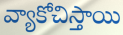
వ్యాకోచిస్తాయి